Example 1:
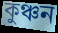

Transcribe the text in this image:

কুঞ্চন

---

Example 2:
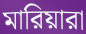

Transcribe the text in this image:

মারিয়ারা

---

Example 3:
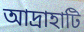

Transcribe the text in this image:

আদ্রাহাটি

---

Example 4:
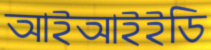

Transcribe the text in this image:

আইআইইডি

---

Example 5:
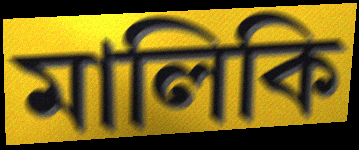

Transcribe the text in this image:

মালিকি